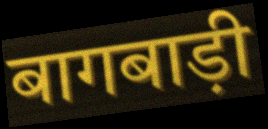
बागबाड़ी